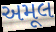
અમૂલ